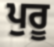
ਪੁਰੂ